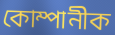
কোম্পানীক